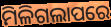
ମିଳିଗଲାପରେ